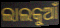
ଲାଲକୁଆଁ